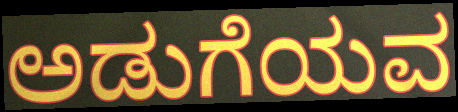
ಅಡುಗೆಯವ